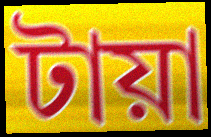
টায়া